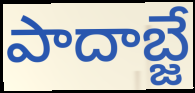
పాదాబ్జే